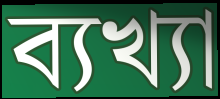
ব্যখ্যা